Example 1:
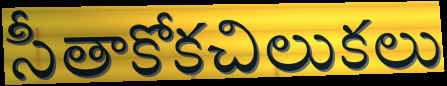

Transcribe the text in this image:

సీతాకోకచిలుకలు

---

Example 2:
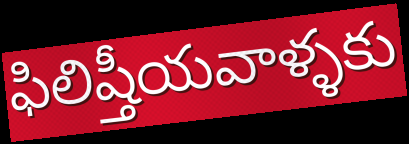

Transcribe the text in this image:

ఫిలిష్తీయవాళ్ళకు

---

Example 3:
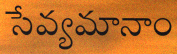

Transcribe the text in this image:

సేవ్యమానాం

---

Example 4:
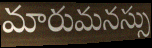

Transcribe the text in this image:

మారుమనస్సు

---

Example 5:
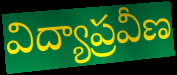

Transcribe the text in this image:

విద్యాప్రవీణ